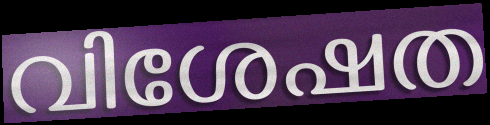
വിശേഷത